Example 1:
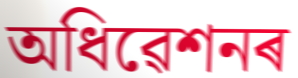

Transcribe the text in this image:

অধিৱেশনৰ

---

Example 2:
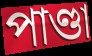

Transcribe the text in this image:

পাণ্ডা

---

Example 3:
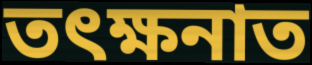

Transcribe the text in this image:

তৎক্ষনাত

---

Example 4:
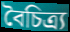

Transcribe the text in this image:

বৈচিত্ৰ্য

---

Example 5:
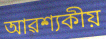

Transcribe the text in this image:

আৱশ্যকীয়